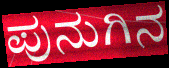
ಪುನುಗಿನ